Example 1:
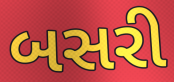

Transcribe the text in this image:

બસરી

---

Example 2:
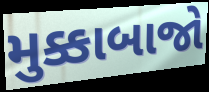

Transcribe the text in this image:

મુક્કાબાજો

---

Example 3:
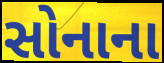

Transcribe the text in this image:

સોનાના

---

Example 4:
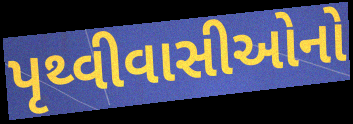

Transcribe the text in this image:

પૃથ્વીવાસીઓનો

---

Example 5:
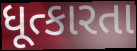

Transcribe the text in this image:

ધૂત્કારતા